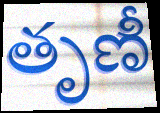
తృణీ